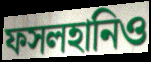
ফসলহানিও